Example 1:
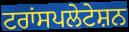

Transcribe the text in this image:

ਟਰਾਂਸਪਲੇਟੇਸ਼ਨ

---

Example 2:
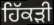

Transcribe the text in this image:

ਹਿੱਕੜੀ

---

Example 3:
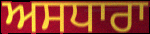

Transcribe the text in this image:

ਅਸਧਾਰਾ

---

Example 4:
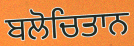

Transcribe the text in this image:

ਬਲੋਚਿਤਾਨ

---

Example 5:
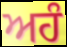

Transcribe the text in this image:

ਅਹੰ